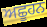
ਅਛੂਹਨ